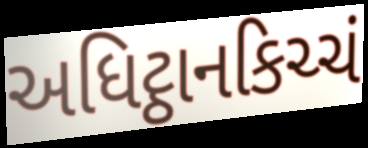
અધિટ્ઠાનકિચ્ચં